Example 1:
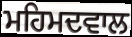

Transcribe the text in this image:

ਮਹਿਮਦਵਾਲ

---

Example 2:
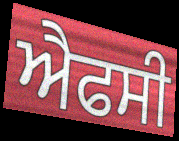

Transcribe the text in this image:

ਐਫਸੀ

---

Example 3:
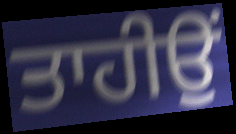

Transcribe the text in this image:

ਤਾਹੀਉਂ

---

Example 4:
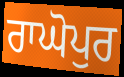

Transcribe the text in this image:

ਰਾਘੋਪੁਰ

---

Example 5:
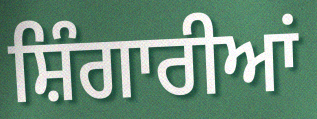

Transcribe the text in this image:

ਸ਼ਿੰਗਾਰੀਆਂ